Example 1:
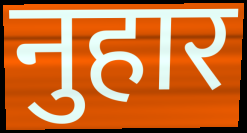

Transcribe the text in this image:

नुहार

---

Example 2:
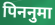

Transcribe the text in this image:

पिननुमा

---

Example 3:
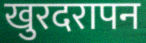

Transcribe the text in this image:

खुरदरापन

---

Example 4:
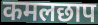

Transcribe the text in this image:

कमलछाप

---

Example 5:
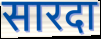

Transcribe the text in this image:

सारदा